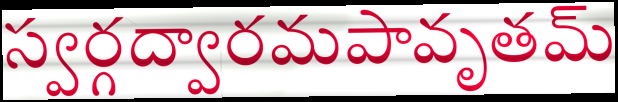
స్వర్గద్వారమపావృతమ్